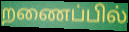
றணைப்பில்